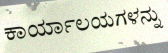
ಕಾರ್ಯಾಲಯಗಳನ್ನು